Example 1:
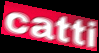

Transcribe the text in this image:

catti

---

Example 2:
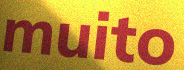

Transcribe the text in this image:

muito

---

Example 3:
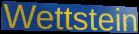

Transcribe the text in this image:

Wettstein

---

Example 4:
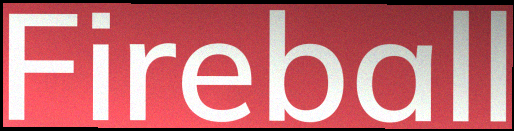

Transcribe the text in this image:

Fireball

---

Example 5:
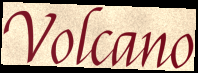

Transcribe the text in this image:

Volcano